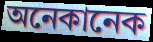
অনেকানেক